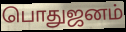
பொதுஜனம்